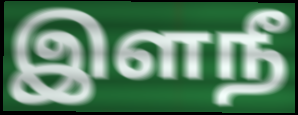
இளநீ